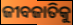
ଜୀବଜାତିକୁ